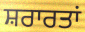
ਸ਼ਰਾਰਤਾਂ